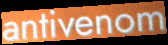
antivenom